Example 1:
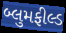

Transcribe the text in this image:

બ્લુમફીલ્ડ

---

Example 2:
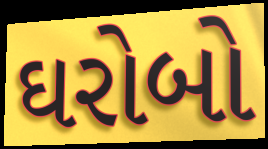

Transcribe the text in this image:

ઘરોબો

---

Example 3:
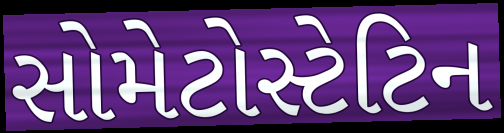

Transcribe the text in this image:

સોમેટોસ્ટેટિન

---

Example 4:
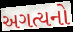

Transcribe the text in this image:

અગત્યનો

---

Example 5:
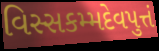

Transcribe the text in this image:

વિસ્સકમ્મદેવપુત્તં